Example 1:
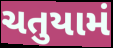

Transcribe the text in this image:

ચતુયામં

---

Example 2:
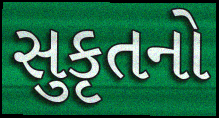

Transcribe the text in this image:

સુકૃતનો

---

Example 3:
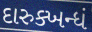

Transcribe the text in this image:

દારુક્ખન્ધં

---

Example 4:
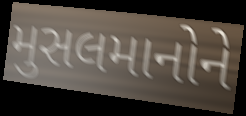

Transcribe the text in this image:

મુસલમાનોને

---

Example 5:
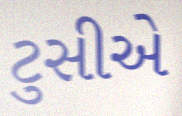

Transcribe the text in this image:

ટુસીએ